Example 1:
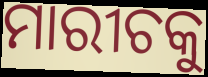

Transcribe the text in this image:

ମାରୀଚକୁ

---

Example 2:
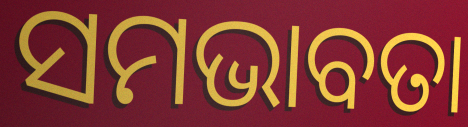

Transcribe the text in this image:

ସମଭାବତା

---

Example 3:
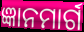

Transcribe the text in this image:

ଜ୍ଞାନମାର୍ଗ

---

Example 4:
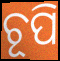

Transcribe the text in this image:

ଚୂପି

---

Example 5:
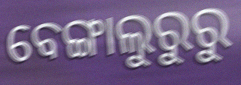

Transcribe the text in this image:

ବେଙ୍ଗାଲୁରୁରୁ